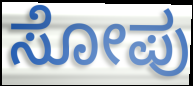
ಸೋಪು